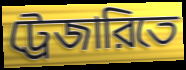
ট্রেজারিতে